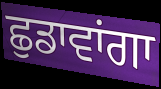
ਛੁਡਾਵਾਂਗਾ